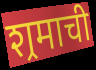
श्रमाची